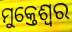
ମୁକ୍ତେଶ୍ଵର